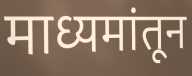
माध्यमांतून